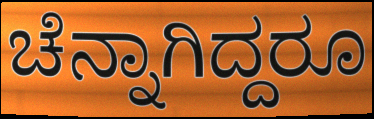
ಚೆನ್ನಾಗಿದ್ದರೂ